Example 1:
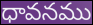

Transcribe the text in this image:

ధావనము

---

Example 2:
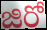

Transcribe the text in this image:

జిరో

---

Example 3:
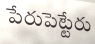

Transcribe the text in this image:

పేరుపెట్టేరు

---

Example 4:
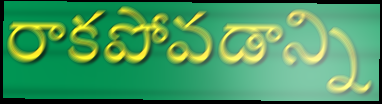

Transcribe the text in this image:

రాకపోవడాన్ని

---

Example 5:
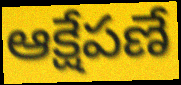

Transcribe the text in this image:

ఆక్షేపణే